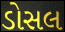
ડોસલ